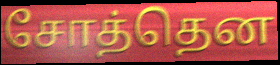
சோத்தென